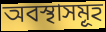
অবস্থাসমূহ